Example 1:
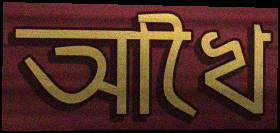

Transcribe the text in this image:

আখৈ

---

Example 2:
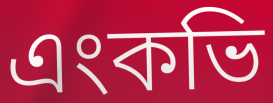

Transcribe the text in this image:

এংকভি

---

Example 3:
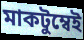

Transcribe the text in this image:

মাকটুম্বেই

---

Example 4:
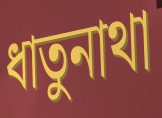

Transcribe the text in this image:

ধাতুনাথা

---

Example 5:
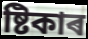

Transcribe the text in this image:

ষ্টিকাৰ